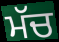
ਮੱਚ